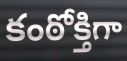
కంఠోక్తిగా